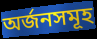
অর্জনসমূহ